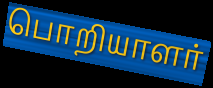
பொறியாளர்